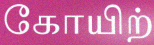
கோயிற்